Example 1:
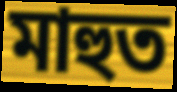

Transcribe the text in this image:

মাহুত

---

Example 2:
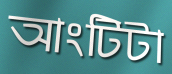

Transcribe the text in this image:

আংটিটা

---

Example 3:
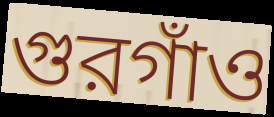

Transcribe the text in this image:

গুরগাঁও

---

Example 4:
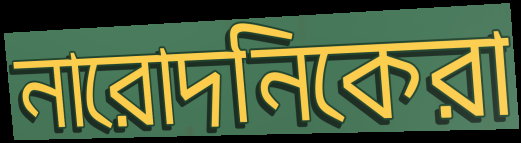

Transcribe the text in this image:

নারোদনিকেরা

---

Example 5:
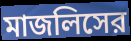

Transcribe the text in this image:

মাজলিসের